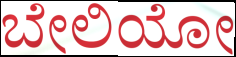
ಬೇಲಿಯೋ